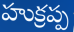
హుక్రప్ప